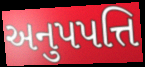
અનુપપત્તિ